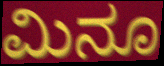
ಮಿನೂ